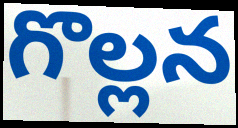
గొల్లన